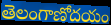
తెలంగాణోదయం